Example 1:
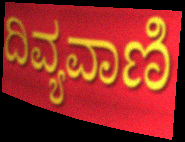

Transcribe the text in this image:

ದಿವ್ಯವಾಣಿ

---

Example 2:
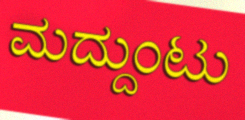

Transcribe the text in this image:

ಮದ್ದುಂಟು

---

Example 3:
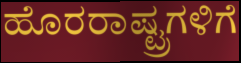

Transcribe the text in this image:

ಹೊರರಾಷ್ಟ್ರಗಳಿಗೆ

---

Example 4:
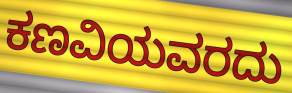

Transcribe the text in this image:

ಕಣವಿಯವರದು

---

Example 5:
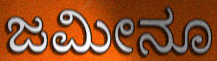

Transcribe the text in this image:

ಜಮೀನೂ